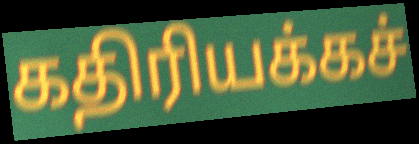
கதிரியக்கச்